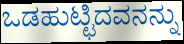
ಒಡಹುಟ್ಟಿದವನನ್ನು